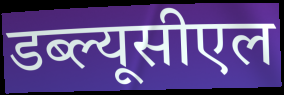
डब्ल्यूसीएल